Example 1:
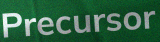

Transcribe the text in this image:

Precursor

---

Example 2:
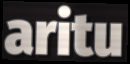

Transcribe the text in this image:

aritu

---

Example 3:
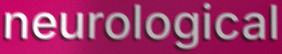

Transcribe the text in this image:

neurological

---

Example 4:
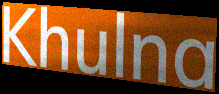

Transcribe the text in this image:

Khulna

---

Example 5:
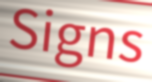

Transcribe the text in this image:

Signs